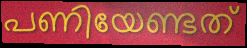
പണിയേണ്ടത്